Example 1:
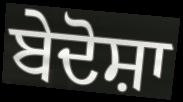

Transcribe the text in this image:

ਬੇਦੋਸ਼ਾ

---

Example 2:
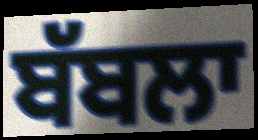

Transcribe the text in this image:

ਬੱਬਲਾ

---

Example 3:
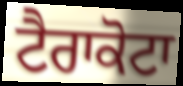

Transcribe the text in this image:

ਟੈਰਾਕੋਟਾ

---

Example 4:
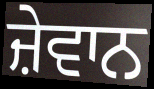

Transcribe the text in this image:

ਜ਼ੇਵਾਨ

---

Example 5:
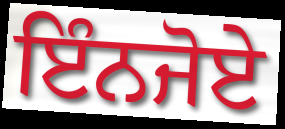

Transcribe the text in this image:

ਇੰਨਜੋਏ